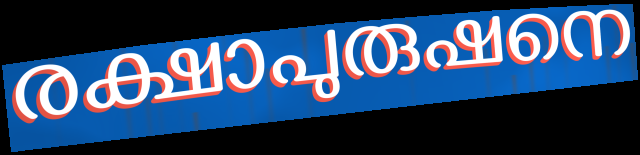
രക്ഷാപുരുഷനെ